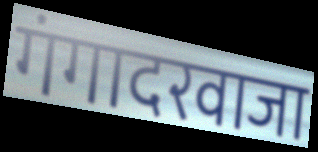
गंगादरवाजा